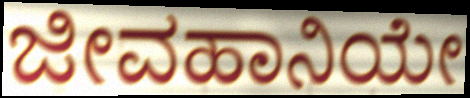
ಜೀವಹಾನಿಯೇ